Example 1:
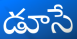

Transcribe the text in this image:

డూసే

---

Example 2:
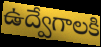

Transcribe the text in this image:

ఉద్వేగాలకి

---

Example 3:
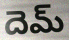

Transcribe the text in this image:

దెమ్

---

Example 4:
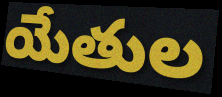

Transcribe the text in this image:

యేతుల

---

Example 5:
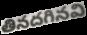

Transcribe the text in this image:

తినదగినవి